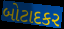
બોટાદકર